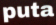
puta